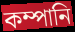
কম্পানি